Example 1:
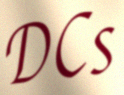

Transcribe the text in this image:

DCs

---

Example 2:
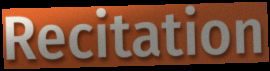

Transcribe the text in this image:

Recitation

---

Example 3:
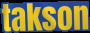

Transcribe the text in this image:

takson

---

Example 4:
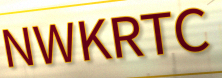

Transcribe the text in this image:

NWKRTC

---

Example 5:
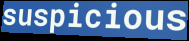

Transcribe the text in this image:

suspicious